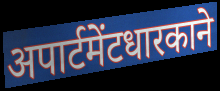
अपार्टमेंटधारकाने